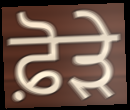
ਫ਼ੋੜੇ